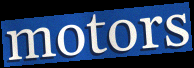
motors